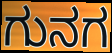
ಗುನಗ